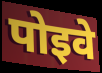
पोइवे